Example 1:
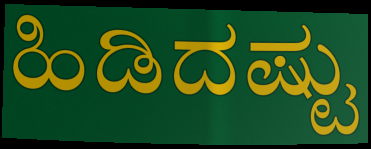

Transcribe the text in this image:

ಹಿಡಿದಷ್ಟು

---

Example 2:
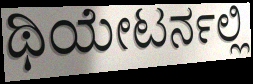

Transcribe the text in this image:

ಥಿಯೇಟರ್ನಲ್ಲಿ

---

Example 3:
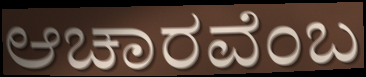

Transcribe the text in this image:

ಆಚಾರವೆಂಬ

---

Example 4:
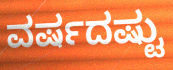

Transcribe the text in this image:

ವರ್ಷದಷ್ಟು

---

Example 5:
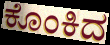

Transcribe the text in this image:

ಕೊಂಕಿದ